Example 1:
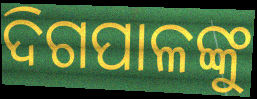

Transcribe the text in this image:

ଦିଗପାଳଙ୍କୁ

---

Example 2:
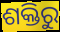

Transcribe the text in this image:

ଶକ୍ତିରୁ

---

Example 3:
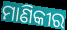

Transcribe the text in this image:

ମାଣିକୀର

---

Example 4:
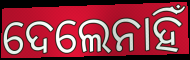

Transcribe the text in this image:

ଦେଲେନାହିଁ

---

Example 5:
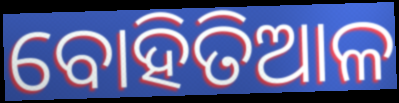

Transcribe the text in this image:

ବୋହିତିଆଳ